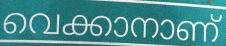
വെക്കാനാണ്